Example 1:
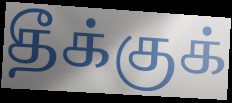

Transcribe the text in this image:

தீக்குக்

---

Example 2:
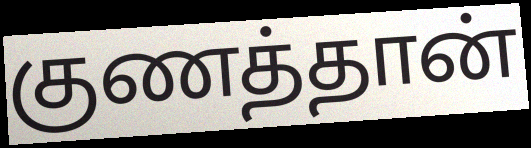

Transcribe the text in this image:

குணத்தான்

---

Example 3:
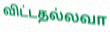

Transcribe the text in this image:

விட்டதல்லவா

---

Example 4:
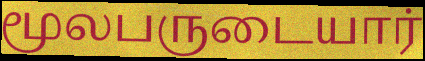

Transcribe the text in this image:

மூலபருடையார்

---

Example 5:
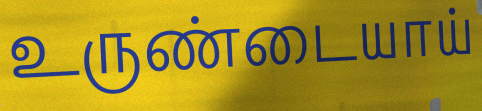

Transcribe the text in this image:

உருண்டையாய்